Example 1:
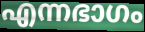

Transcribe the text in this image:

എന്നഭാഗം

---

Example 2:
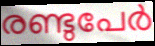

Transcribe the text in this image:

രണ്ടുപേർ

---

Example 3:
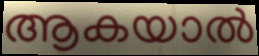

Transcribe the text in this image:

ആകയാൽ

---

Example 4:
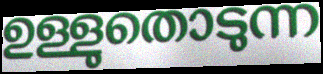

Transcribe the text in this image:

ഉള്ളുതൊടുന്ന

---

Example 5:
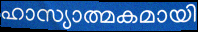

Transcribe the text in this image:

ഹാസ്യാത്മകമായി